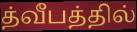
த்வீபத்தில்